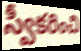
స్వీకరించి